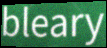
bleary